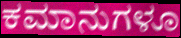
ಕಮಾನುಗಳೂ